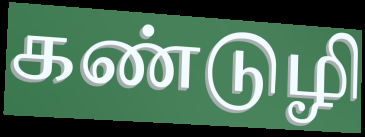
கண்டுழி